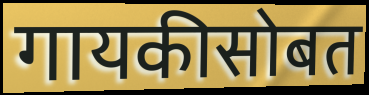
गायकीसोबत